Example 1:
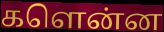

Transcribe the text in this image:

களென்ன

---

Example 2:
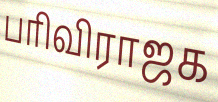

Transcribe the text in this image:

பரிவிராஜக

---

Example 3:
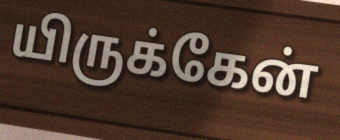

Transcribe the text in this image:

யிருக்கேன்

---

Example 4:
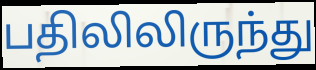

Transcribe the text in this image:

பதிலிலிருந்து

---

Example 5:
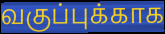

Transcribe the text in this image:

வகுப்புக்காக